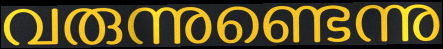
വരുന്നുണ്ടെന്നു